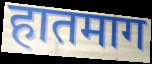
हातमाग